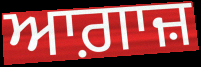
ਆਗ਼ਾਜ਼